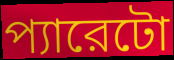
প্যারেটো